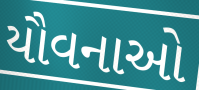
યૌવનાઓ